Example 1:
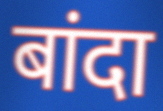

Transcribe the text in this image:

बांदा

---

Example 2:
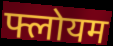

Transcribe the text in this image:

फ्लोयम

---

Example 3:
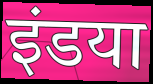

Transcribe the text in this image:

इंडया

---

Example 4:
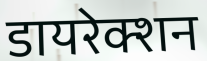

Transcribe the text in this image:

डायरेक्शन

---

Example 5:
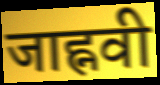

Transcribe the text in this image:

जाह्नवी